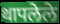
थापलेले